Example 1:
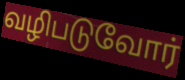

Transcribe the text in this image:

வழிபடுவோர்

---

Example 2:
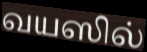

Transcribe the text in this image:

வயஸில்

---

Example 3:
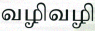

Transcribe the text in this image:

வழிவழி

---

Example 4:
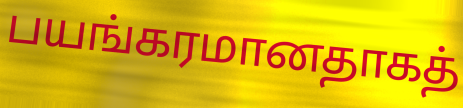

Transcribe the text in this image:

பயங்கரமானதாகத்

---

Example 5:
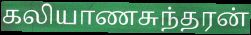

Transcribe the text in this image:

கலியாணசுந்தரன்